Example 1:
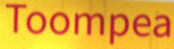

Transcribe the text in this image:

Toompea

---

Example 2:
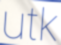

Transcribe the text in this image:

utk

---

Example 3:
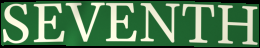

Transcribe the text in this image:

SEVENTH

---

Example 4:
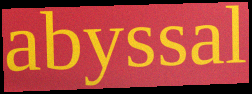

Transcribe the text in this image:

abyssal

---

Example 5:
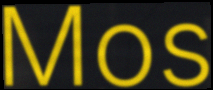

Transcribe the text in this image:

Mos